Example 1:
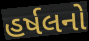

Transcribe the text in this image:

હર્ષલનો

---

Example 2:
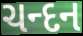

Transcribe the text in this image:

ચન્દન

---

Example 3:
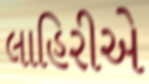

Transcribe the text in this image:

લાહિરીએ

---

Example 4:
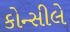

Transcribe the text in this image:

કોન્સીલે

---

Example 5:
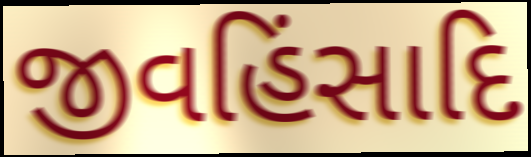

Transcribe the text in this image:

જીવહિંસાદિ